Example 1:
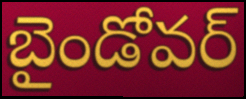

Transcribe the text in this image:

బైండోవర్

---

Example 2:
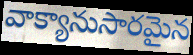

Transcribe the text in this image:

వాక్యానుసారమైన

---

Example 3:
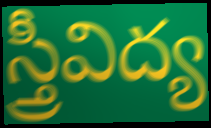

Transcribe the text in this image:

స్త్రీవిద్య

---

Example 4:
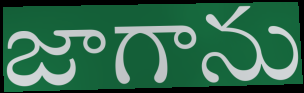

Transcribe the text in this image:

జాగాను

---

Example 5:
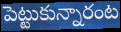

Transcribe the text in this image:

పెట్టుకున్నారంట